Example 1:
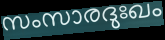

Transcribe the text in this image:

സംസാരദുഃഖം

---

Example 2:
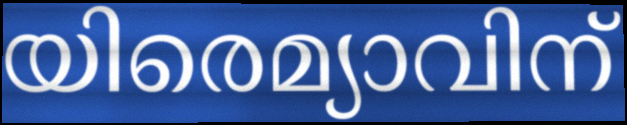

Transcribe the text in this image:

യിരെമ്യാവിന്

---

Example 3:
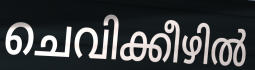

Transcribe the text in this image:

ചെവിക്കീഴിൽ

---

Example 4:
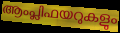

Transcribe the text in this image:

ആംപ്ലിഫയറുകളും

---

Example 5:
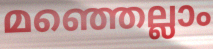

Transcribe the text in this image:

മഞ്ഞെല്ലാം